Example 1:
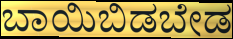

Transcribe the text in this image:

ಬಾಯಿಬಿಡಬೇಡ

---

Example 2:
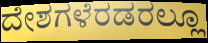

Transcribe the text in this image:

ದೇಶಗಳೆರಡರಲ್ಲೂ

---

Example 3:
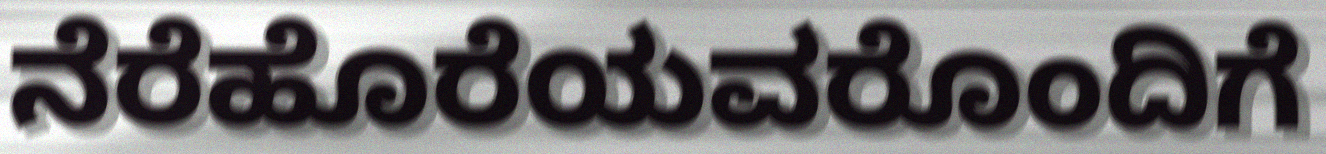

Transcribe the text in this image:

ನೆರೆಹೊರೆಯವರೊಂದಿಗೆ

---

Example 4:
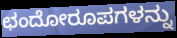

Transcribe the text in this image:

ಛಂದೋರೂಪಗಳನ್ನು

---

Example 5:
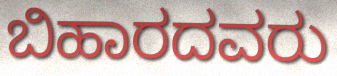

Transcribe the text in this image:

ಬಿಹಾರದವರು